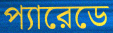
প্যারেডে